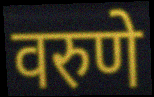
वरुणे